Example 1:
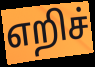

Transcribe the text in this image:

எறிச்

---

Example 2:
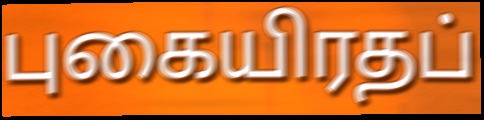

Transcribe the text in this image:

புகையிரதப்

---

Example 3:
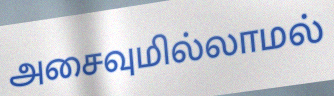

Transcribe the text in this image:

அசைவுமில்லாமல்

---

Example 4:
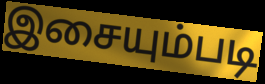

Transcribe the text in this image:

இசையும்படி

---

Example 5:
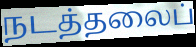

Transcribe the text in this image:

நடத்தலைப்